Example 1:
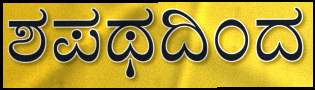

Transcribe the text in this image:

ಶಪಥದಿಂದ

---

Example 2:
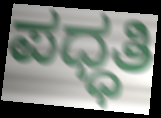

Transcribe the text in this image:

ಪಧ್ಧತಿ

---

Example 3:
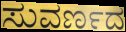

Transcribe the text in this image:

ಸುವರ್ಣದ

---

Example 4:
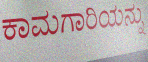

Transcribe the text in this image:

ಕಾಮಗಾರಿಯನ್ನು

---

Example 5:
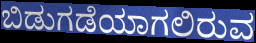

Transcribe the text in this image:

ಬಿಡುಗಡೆಯಾಗಲಿರುವ